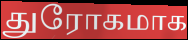
துரோகமாக